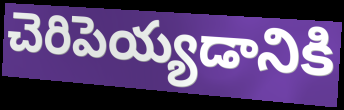
చెరిపెయ్యడానికి